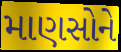
માણસોને